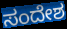
ಸಂದೇಶ